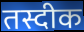
तस्दीक